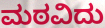
ಮಠವಿದು